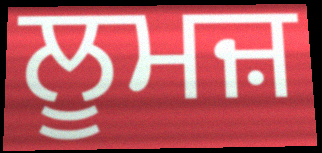
ਲੂਮਜ਼